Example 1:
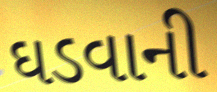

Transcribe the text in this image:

ઘડવાની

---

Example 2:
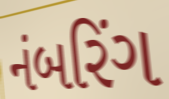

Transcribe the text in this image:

નંબરિંગ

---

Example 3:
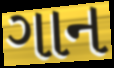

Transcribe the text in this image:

ગાન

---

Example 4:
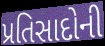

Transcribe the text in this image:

પ્રતિસાદોની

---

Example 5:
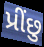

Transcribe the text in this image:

પ્રીંછુ